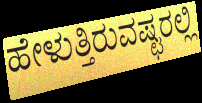
ಹೇಳುತ್ತಿರುವಷ್ಟರಲ್ಲಿ